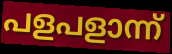
പളപളാന്ന്